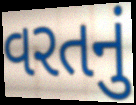
વરતનું